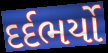
દર્દભર્યો